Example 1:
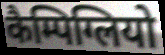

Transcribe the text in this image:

कैम्पिग्लियो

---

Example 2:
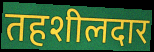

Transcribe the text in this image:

तहशीलदार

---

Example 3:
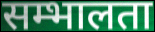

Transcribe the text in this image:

सम्भालता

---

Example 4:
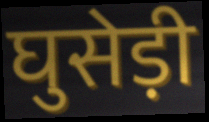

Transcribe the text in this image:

घुसेड़ी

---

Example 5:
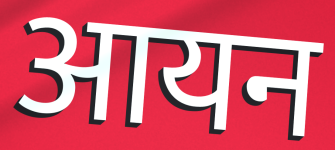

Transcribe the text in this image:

आयन